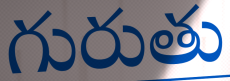
గురుతు